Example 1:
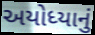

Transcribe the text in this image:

અયોધ્યાનું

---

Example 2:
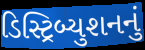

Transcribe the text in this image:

ડિસ્ટ્રિબ્યુશનનું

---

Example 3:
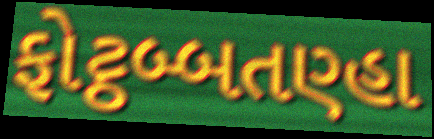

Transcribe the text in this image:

ફોટ્ઠબ્બતણ્હા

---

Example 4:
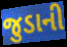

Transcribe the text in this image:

જુડાની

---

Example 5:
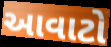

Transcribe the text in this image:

આવાટો